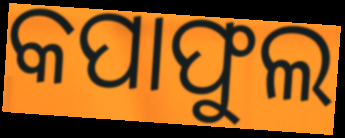
କପାଫୁଲ